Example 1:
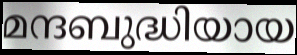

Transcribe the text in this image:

മന്ദബുദ്ധിയായ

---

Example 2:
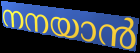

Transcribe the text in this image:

നനയാൻ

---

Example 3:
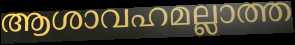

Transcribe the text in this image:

ആശാവഹമല്ലാത്ത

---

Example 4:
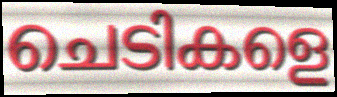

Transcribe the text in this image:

ചെടികളെ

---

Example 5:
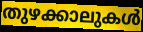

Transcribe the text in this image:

തുഴക്കാലുകൾ